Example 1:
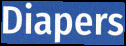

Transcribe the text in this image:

Diapers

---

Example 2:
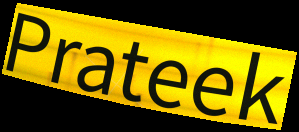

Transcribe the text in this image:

Prateek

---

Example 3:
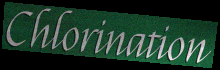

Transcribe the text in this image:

Chlorination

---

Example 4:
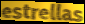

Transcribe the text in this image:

estrellas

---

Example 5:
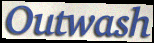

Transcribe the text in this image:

Outwash